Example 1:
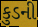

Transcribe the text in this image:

કુડની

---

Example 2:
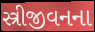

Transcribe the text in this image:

સ્ત્રીજીવનના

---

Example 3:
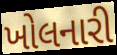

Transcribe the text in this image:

ખોલનારી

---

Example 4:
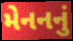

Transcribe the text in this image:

મેનનનું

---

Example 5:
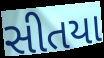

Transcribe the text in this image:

સીતયા